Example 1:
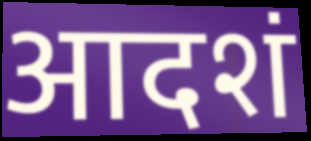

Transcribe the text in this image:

आदशं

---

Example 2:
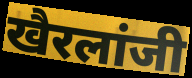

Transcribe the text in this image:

खैरलांजी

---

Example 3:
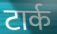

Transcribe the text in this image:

टार्क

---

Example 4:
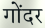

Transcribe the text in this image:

गोंदर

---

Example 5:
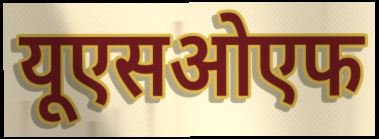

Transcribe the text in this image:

यूएसओएफ